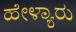
ಹೇಳ್ಯಾರು